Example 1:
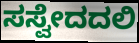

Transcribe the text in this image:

ಸಸ್ವೇದದಲಿ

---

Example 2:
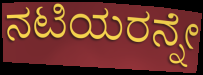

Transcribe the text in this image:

ನಟಿಯರನ್ನೇ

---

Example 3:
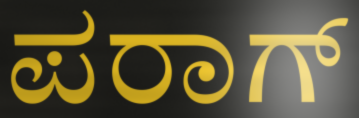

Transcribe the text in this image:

ಪರಾಗ್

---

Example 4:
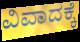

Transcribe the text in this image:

ವಿವಾದಕ್ಕೆ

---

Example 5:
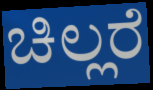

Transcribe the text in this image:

ಚಿಲ್ಲರೆ